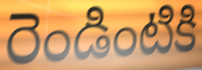
రెండింటికి